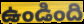
ఉండింది